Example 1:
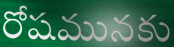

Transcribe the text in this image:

రోషమునకు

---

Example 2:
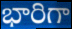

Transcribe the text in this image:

భారిగా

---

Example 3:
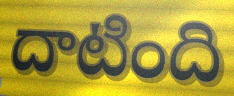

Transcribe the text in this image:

దాటింది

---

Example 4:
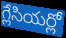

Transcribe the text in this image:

గ్లేసియర్లో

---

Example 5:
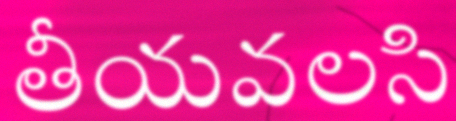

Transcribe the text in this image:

తీయవలసి